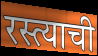
रस्त्याची